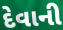
દેવાની